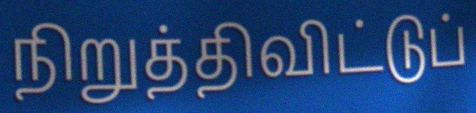
நிறுத்திவிட்டுப்